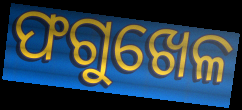
ଫଗୁଖେଳ